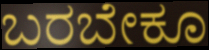
ಬರಬೇಕೂ